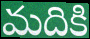
మదికి